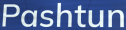
Pashtun